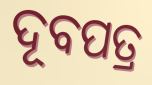
ଦୂବପତ୍ର